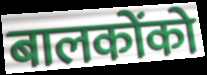
बालकोंको